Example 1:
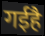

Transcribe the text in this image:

गईहै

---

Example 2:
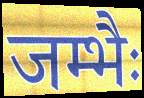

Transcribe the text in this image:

जम्भैः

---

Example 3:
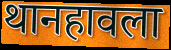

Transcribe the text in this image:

थानहावला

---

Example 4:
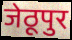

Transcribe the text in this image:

जेठूपुर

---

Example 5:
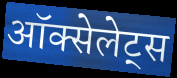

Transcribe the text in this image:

ऑक्सेलेट्स